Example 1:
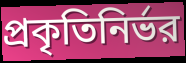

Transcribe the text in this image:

প্রকৃতিনির্ভর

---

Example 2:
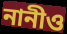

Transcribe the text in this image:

নানীও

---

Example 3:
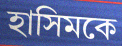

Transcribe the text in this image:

হাসিমকে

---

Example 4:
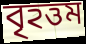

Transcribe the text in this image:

বৃহত্তম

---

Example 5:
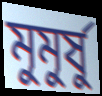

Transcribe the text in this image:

মুমুর্ষু